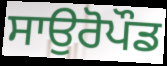
ਸਾਉਰੋਪੌਡ